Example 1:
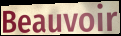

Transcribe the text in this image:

Beauvoir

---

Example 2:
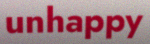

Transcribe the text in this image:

unhappy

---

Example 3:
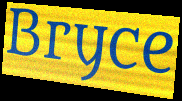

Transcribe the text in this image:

Bryce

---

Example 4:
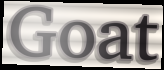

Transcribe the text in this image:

Goat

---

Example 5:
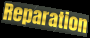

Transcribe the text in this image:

Reparation